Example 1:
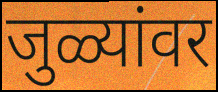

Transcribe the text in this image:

जुळ्यांवर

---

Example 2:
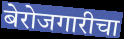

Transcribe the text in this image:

बेरोजगारीचा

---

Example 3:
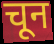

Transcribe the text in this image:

चून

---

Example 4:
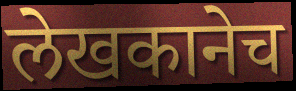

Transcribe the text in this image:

लेखकानेच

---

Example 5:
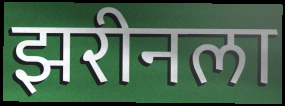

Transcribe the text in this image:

झरीनला